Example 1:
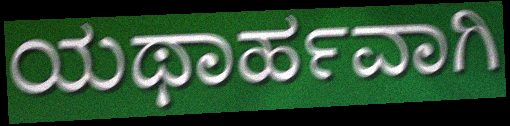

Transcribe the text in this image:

ಯಥಾರ್ಹವಾಗಿ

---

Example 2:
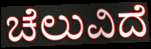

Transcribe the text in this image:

ಚೆಲುವಿದೆ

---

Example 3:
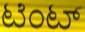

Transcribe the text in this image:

ಟೆಂಟ್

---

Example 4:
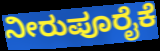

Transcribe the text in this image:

ನೀರುಪೂರೈಕೆ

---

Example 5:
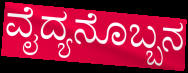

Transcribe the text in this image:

ವೈದ್ಯನೊಬ್ಬನ